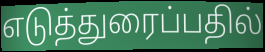
எடுத்துரைப்பதில்